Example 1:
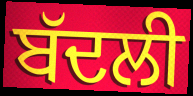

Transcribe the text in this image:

ਬੱਦਲੀ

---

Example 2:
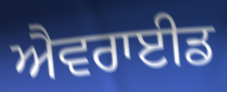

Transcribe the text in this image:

ਐਵਰਾਈਡ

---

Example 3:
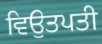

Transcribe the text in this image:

ਵਿਉਤਪਤੀ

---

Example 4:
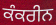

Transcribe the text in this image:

ਕੰਕਰੀਨ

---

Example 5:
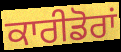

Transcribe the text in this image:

ਕਾਰੀਡੋਰਾਂ